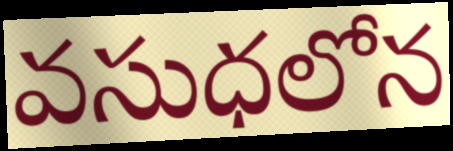
వసుధలోన